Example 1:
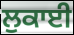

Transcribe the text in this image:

ਲੁਕਾਈ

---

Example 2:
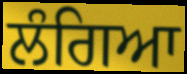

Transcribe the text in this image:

ਲੰਗਿਆ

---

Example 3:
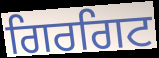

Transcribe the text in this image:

ਗਿਰਗਿਟ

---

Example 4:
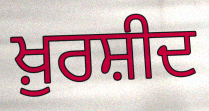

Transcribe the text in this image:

ਖ਼ੁਰਸ਼ੀਦ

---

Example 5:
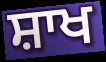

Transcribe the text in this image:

ਸ਼ਾਖ